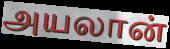
அயலான்